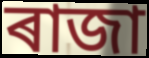
ৰাজা